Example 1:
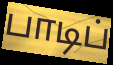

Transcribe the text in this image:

பாடிப்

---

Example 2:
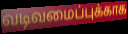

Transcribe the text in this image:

வடிவமைப்புக்காக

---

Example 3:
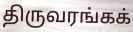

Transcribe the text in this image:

திருவரங்கக்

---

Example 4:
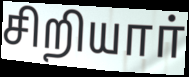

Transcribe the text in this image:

சிறியார்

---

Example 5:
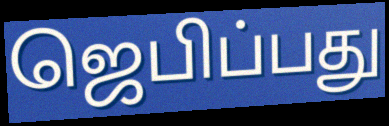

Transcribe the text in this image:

ஜெபிப்பது